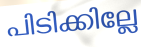
പിടിക്കില്ലേ